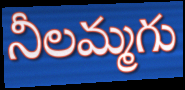
నీలమ్మగు